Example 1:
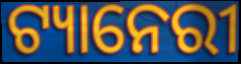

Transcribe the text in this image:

ଟ୍ୟାନେରୀ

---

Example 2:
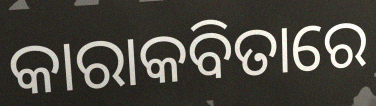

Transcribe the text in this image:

କାରାକବିତାରେ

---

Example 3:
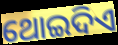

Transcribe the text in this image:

ଥୋଇଦିଏ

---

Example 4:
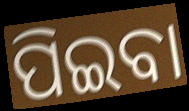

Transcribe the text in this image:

ପିଇବା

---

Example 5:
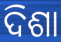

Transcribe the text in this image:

ଦିଶା